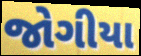
જોગીયા